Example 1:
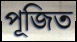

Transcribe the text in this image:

পূজিত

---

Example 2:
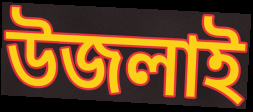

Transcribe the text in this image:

উজলাই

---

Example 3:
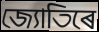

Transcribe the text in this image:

জ্যোতিৰে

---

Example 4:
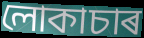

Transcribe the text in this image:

লোকাচাৰ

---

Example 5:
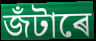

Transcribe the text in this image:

জঁটাৰে